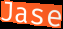
Jase